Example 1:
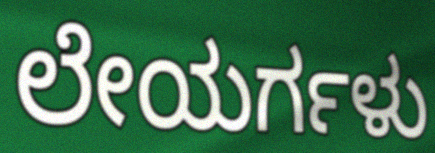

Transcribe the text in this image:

ಲೇಯರ್ಗಳು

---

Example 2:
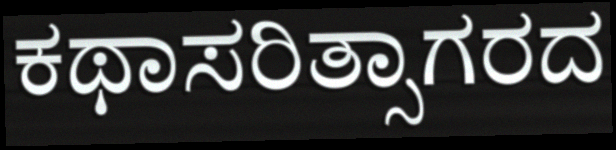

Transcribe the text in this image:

ಕಥಾಸರಿತ್ಸಾಗರದ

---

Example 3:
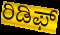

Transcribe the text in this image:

ರಿಡಿಫ್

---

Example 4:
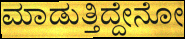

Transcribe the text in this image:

ಮಾಡುತ್ತಿದ್ದೇನೋ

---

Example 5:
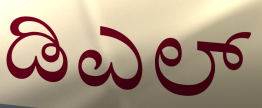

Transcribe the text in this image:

ಡಿಎಲ್